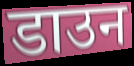
डाउन